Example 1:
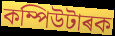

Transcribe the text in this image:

কম্পিউটাৰক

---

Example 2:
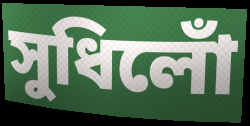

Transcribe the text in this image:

সুধিলোঁ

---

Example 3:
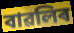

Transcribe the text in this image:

বাৱলিৰ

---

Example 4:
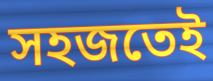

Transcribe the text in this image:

সহজতেই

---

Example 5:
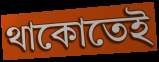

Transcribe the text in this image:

থাকোতেই